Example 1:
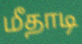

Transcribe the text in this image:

மீதாடி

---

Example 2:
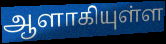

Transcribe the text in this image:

ஆளாகியுள்ள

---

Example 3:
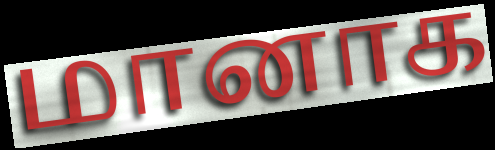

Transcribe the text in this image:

மானாக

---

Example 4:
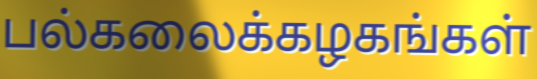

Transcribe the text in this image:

பல்கலைக்கழகங்கள்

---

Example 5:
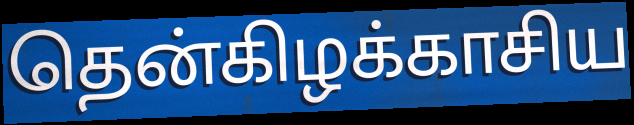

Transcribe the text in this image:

தென்கிழக்காசிய